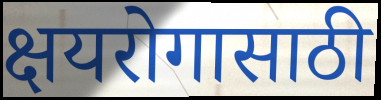
क्षयरोगासाठी